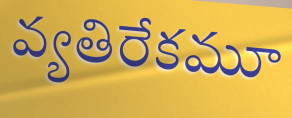
వ్యతిరేకమూ